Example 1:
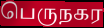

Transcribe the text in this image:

பெருநகர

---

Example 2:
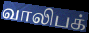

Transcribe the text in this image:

வாலிபக்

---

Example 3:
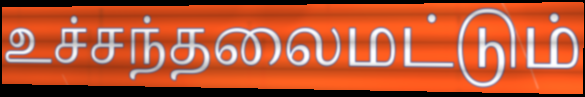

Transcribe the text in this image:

உச்சந்தலைமட்டும்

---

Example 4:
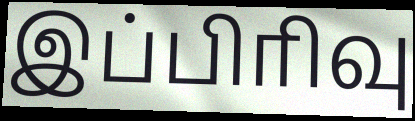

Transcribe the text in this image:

இப்பிரிவு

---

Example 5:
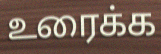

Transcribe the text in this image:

உரைக்க